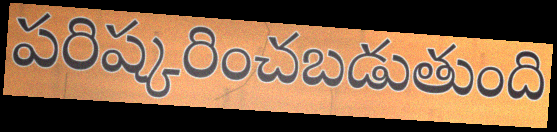
పరిష్కరించబడుతుంది